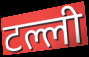
टल्ली